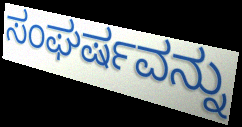
ಸಂಘರ್ಷವನ್ನು